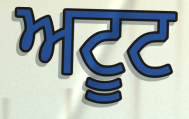
ਅਟੂਟ